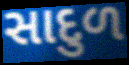
સાદુળ